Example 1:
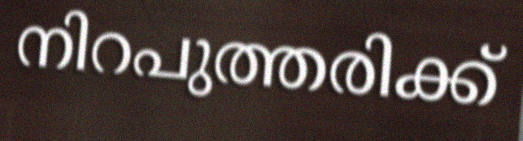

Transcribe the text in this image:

നിറപുത്തരിക്ക്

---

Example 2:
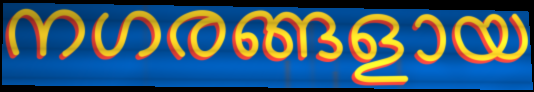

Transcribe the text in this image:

നഗരങ്ങളായ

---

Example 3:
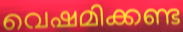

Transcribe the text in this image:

വെഷമിക്കണ്ട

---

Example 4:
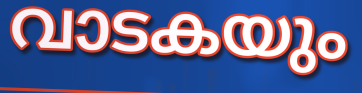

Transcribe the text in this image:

വാടകയും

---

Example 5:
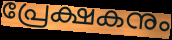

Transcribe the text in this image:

പ്രേക്ഷകനും